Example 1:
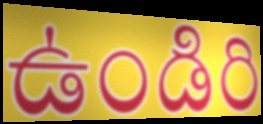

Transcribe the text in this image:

ఉండిరి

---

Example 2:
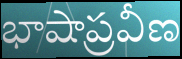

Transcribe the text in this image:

భాషాప్రవీణ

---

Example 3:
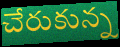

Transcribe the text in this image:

చేరుకున్న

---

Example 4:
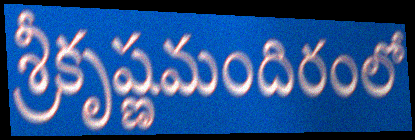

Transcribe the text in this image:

శ్రీకృష్ణమందిరంలో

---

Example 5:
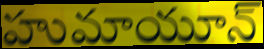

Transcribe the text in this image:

హుమాయూన్